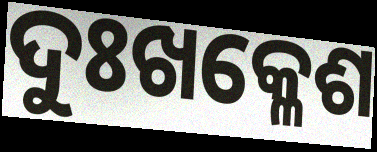
ଦୁଃଖକ୍ଳେଶ